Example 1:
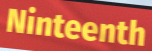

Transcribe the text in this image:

Ninteenth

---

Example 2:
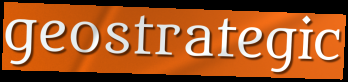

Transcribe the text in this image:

geostrategic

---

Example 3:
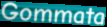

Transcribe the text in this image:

Gommata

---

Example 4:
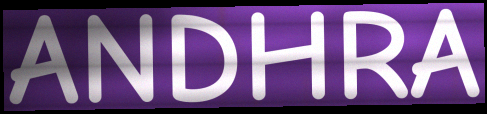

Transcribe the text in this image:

ANDHRA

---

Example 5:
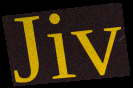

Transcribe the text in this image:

Jiv